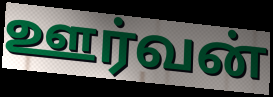
ஊர்வன்